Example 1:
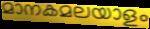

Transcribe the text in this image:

മാനകമലയാളം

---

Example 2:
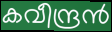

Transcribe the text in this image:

കവീന്ദ്രൻ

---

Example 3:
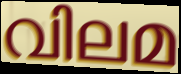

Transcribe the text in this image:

വിലമ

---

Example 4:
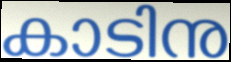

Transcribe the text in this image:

കാടിനു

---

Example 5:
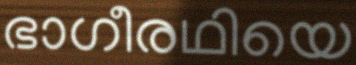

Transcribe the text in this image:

ഭാഗീരഥിയെ